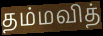
தம்மவித்